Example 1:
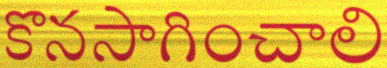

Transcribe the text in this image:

కొనసాగించాలి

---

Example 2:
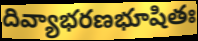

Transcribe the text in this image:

దివ్యాభరణభూషితః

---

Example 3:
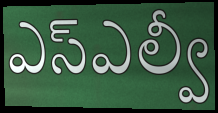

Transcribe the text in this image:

ఎస్ఎల్వీ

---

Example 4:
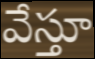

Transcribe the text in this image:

వేస్తూ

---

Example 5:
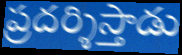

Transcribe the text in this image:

ప్రదర్శిస్తాడు